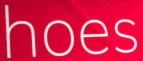
hoes